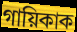
গায়িকাক